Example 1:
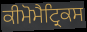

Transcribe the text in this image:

ਕੀਮੋਮੈਟ੍ਰਿਕਸ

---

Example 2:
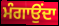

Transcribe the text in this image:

ਮੰਗਾਉਂਦਾ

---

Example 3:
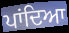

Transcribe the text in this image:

ਪਾਂਦਿਆ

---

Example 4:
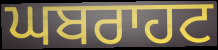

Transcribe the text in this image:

ਘਬਰਾਹਟ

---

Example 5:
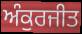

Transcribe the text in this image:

ਅੰਕੁਰਜੀਤ